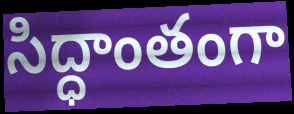
సిద్ధాంతంగా